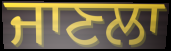
ਜਾਣਲਾ